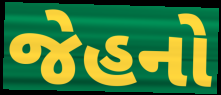
જેહનો